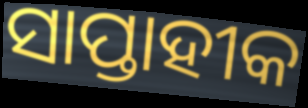
ସାପ୍ତାହୀକ